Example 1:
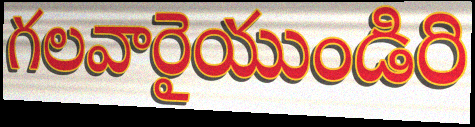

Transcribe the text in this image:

గలవారైయుండిరి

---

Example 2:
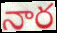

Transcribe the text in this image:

నార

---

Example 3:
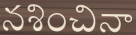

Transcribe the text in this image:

నశించినా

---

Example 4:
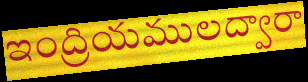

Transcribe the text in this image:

ఇంద్రియములద్వారా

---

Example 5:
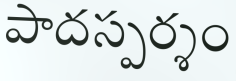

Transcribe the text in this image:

పాదస్పర్శం